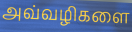
அவ்வழிகளை